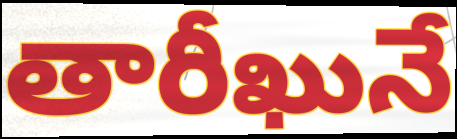
తారీఖునే